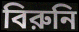
বিরুনি